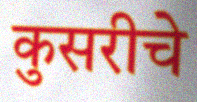
कुसरीचे